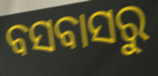
ବସବାସରୁ